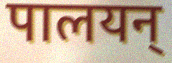
पालयन्